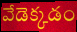
వేడెక్కడం